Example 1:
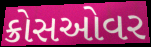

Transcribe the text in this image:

ક્રોસઓવર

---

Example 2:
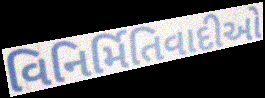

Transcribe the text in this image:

વિનિર્મિતિવાદીઓ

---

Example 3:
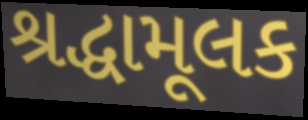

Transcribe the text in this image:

શ્રદ્ધામૂલક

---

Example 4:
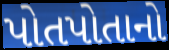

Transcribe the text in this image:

પોતપોતાનો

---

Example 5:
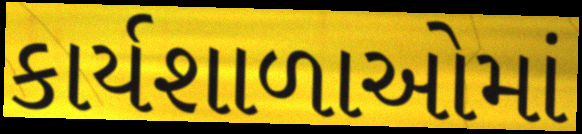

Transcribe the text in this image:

કાર્યશાળાઓમાં